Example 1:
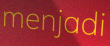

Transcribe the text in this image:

menjadi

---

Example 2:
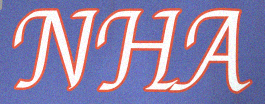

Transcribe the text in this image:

NHA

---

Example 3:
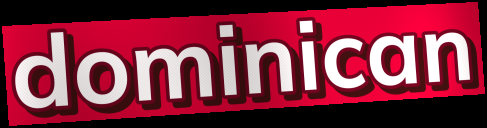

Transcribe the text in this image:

dominican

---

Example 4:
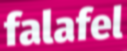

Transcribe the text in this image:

falafel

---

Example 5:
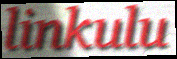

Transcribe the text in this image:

linkulu